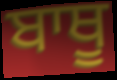
ਬਾਥੂ